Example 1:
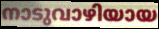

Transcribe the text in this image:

നാടുവാഴിയായ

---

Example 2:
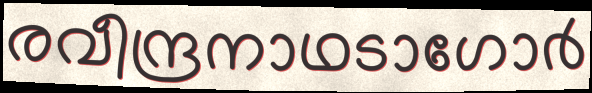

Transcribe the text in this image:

രവീന്ദ്രനാഥടാഗോർ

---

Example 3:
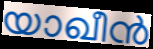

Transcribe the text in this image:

യാഖീൻ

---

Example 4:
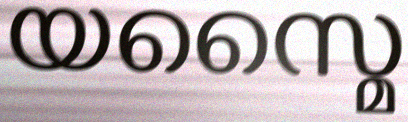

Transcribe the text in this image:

യസ്മൈ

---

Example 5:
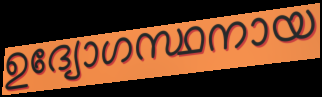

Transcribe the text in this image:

ഉദ്യോഗസ്ഥനായ